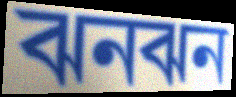
ঝনঝন